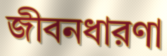
জীবনধারণা